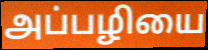
அப்பழியை